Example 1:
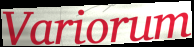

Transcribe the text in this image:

Variorum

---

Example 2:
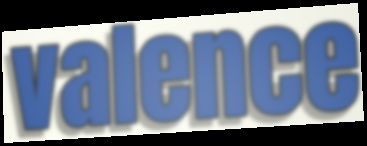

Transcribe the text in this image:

valence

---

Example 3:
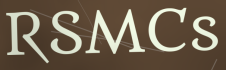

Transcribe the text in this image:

RSMCs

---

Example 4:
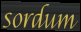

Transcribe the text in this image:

sordum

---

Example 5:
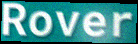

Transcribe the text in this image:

Rover